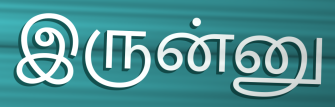
இருன்னு